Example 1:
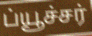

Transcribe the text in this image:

ப்யூச்சர்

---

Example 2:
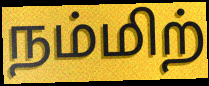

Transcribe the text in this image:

நம்மிற்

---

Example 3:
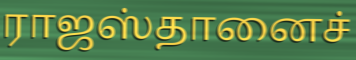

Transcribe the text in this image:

ராஜஸ்தானைச்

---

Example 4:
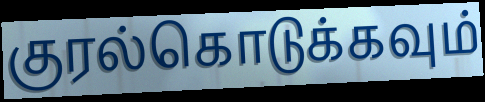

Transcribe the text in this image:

குரல்கொடுக்கவும்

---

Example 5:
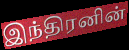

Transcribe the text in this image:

இந்திரனின்